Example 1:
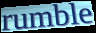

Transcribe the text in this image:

rumble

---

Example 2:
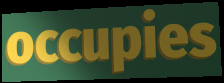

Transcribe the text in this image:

occupies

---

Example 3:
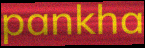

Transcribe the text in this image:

pankha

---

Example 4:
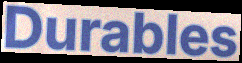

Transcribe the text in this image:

Durables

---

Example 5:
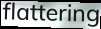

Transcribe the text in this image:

flattering